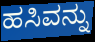
ಹಸಿವನ್ನು